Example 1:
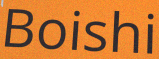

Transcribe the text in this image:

Boishi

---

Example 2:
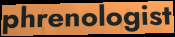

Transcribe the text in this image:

phrenologist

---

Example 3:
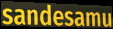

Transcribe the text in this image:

sandesamu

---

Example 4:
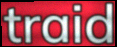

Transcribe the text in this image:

traid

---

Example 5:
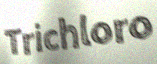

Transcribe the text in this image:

Trichloro